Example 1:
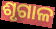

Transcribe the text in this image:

ଶୃଗାଳ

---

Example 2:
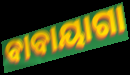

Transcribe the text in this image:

ବାବାୟାଗା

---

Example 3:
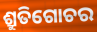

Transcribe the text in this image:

ଶ୍ରୁତିଗୋଚର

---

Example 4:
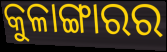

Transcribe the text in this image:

କୁଳାଙ୍ଗାରର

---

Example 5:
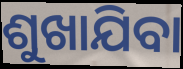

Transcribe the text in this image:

ଶୁଖାଯିବା